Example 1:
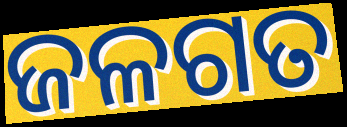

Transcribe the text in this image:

ଜଳଗତ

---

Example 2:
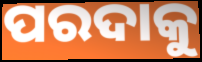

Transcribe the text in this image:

ପରଦାକୁ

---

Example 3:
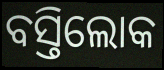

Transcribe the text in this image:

ବସ୍ତିଲୋକ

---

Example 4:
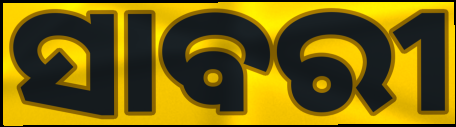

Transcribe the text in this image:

ସାବରୀ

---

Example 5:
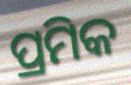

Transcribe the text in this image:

ପ୍ରମିକ